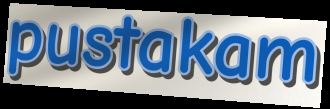
pustakam